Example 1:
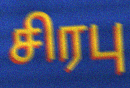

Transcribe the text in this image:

சிரபு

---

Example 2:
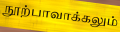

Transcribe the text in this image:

நூற்பாவாக்கலும்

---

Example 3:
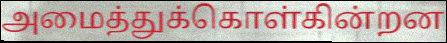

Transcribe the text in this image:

அமைத்துக்கொள்கின்றன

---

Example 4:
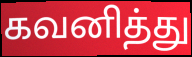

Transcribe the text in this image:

கவனித்து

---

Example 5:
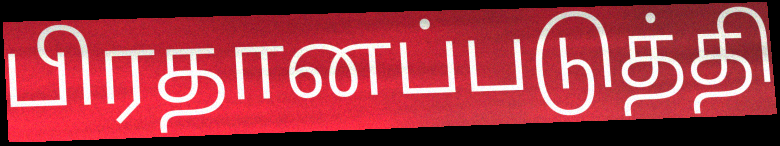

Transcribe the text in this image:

பிரதானப்படுத்தி